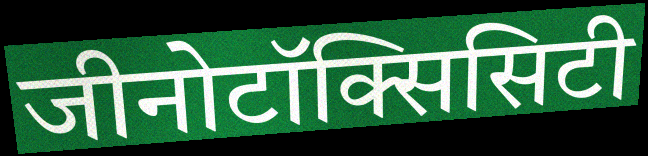
जीनोटॉक्सिसिटी